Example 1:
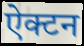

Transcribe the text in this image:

ऐक्टन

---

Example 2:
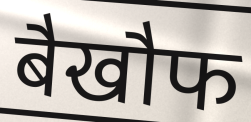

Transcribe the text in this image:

बैखौफ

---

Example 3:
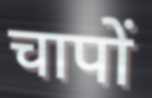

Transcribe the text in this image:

चापों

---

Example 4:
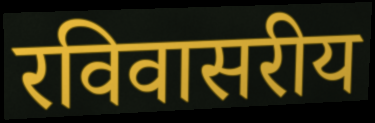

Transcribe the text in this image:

रविवासरीय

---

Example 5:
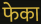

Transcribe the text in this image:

फेका